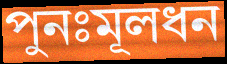
পুনঃমূলধন